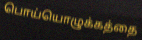
பொய்யொழுக்கத்தை